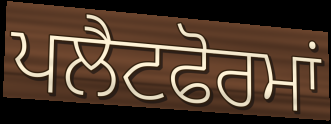
ਪਲੈਟਫੋਰਮਾਂ